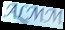
ALMM